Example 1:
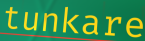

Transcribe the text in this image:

tunkare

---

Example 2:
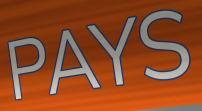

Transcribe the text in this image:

PAYS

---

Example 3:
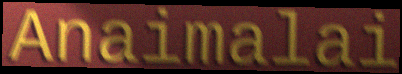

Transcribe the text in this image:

Anaimalai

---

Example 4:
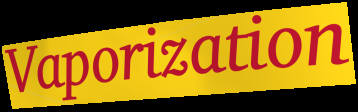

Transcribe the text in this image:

Vaporization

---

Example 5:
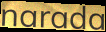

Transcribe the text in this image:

narada